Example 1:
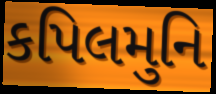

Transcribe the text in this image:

કપિલમુનિ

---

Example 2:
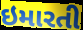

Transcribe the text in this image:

ઇમારતી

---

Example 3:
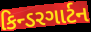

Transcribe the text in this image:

કિન્ડરગાર્ટન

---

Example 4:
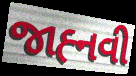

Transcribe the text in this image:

જાહ્‍નવી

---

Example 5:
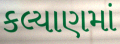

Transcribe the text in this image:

કલ્યાણમાં